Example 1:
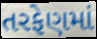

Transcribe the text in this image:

તરફેણમાં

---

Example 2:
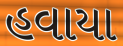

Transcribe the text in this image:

હવાયા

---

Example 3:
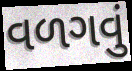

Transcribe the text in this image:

વળગવું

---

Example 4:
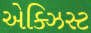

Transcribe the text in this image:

એક્ઝિસ્ટ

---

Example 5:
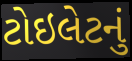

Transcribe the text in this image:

ટોઇલેટનું